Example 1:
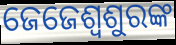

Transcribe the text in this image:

ଜେଜେଶ୍ୱଶୁରଙ୍କ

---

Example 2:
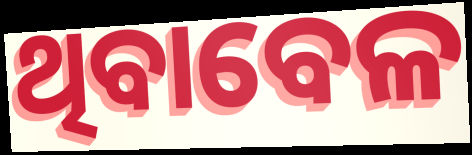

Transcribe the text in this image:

ଥିବାବେଳ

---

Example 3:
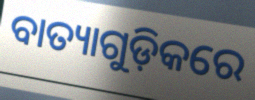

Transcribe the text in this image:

ବାତ୍ୟାଗୁଡ଼ିକରେ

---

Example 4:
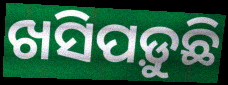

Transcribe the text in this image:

ଖସିପଡ଼ୁଛି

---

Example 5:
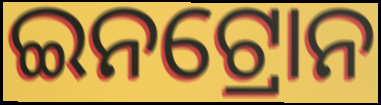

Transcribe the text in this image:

ଇନଟ୍ରୋନ